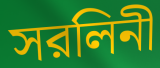
সরলিনী